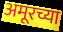
अमूरच्या